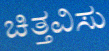
ಚಿತ್ತವಿಸು